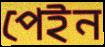
পেইন